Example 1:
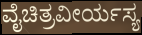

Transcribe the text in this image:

ವೈಚಿತ್ರವೀರ್ಯಸ್ಯ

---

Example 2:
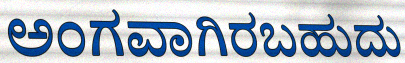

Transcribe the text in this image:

ಅಂಗವಾಗಿರಬಹುದು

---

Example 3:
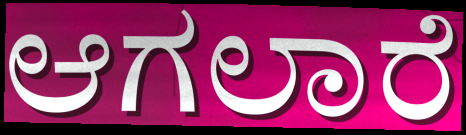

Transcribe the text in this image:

ಆಗಲಾರೆ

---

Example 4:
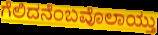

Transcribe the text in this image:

ಗೆಲಿದನೆಂಬವೊಲಾಯ್ತು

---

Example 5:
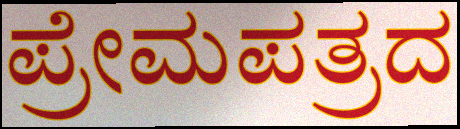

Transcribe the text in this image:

ಪ್ರೇಮಪತ್ರದ